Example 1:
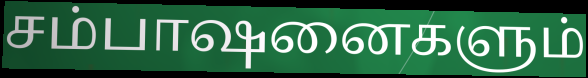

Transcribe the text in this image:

சம்பாஷனைகளும்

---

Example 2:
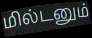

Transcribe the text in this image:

மில்டனும்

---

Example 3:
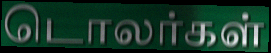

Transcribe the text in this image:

டொலர்கள்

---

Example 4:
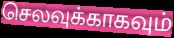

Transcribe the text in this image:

செலவுக்காகவும்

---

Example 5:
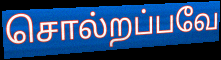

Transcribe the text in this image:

சொல்றப்பவே